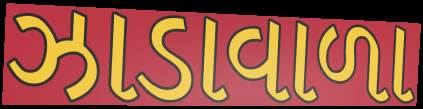
ઝાડાવાળા